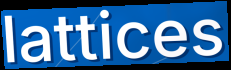
lattices